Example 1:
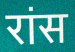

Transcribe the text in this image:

रांस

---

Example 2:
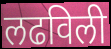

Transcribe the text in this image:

लढविली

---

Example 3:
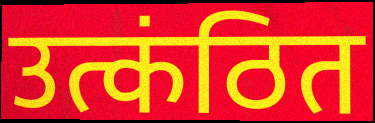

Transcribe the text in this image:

उत्कंठित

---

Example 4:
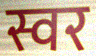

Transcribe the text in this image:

स्वर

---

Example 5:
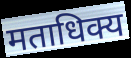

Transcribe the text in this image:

मताधिक्य